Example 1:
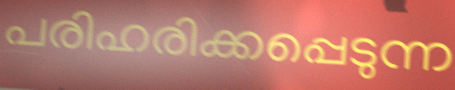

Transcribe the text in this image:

പരിഹരിക്കപ്പെടുന്ന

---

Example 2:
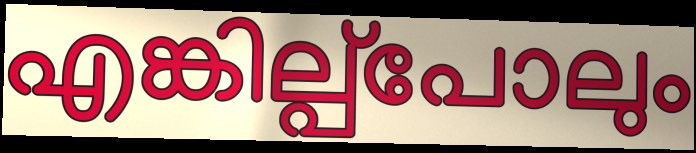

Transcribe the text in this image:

എങ്കില്പ്പോലും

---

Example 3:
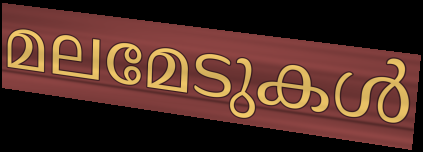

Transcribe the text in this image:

മലമേടുകൾ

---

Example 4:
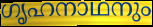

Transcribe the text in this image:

ഗൃഹനാഥനും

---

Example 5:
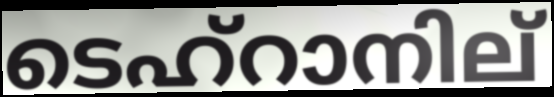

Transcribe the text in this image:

ടെഹ്റാനില്